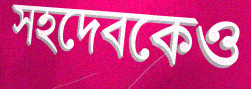
সহদেবকেও